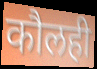
कौलही